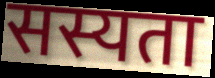
सस्यता